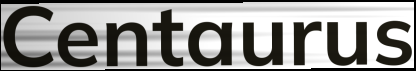
Centaurus